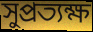
সুপ্রত্যক্ষ